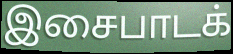
இசைபாடக்